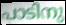
പാടിനു